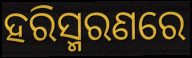
ହରିସ୍ମରଣରେ